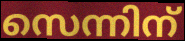
സെന്നിന്